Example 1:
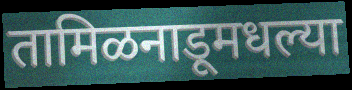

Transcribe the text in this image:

तामिळनाडूमधल्या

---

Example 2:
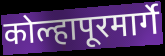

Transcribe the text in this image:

कोल्हापूरमार्गे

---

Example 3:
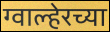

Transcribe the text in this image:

ग्वाल्हेरच्या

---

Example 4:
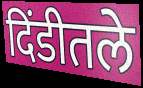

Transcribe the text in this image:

दिंडीतले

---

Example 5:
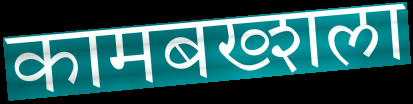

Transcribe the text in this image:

कामबख्शला